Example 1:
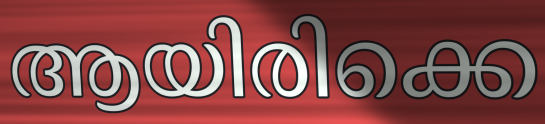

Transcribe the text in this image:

ആയിരിക്കെ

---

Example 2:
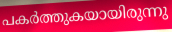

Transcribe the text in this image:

പകർത്തുകയായിരുന്നു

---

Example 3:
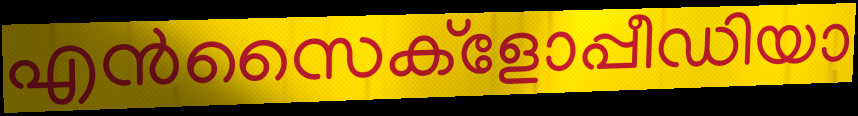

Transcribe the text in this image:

എൻസൈക്ളോപ്പീഡിയാ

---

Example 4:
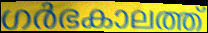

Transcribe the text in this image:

ഗർഭകാലത്ത്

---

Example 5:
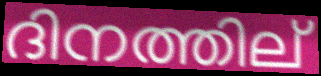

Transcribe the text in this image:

ദിനത്തില്